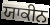
ਯਾਕੀਨ